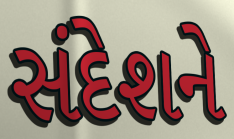
સંદેશને